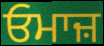
ਓਮਾਜ਼